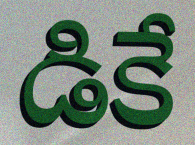
డికే